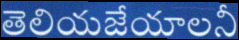
తెలియజేయాలనీ